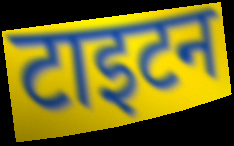
टाइटन